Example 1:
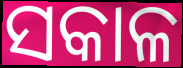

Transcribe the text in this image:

ସକାଳ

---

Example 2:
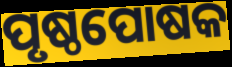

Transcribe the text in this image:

ପୃଷ୍ଠପୋଷକ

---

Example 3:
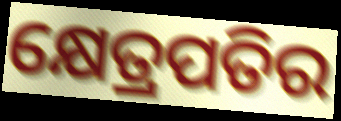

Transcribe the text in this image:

କ୍ଷେତ୍ରପତିର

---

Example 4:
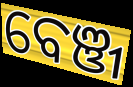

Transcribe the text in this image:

ବେଞ୍ଜ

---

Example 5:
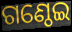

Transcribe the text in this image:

ଗଣ୍ଠେଇ